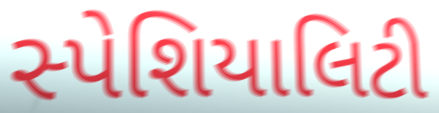
સ્પેશિયાલિટી